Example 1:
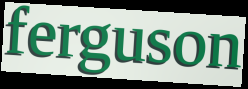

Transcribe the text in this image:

ferguson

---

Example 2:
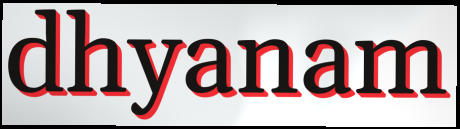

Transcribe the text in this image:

dhyanam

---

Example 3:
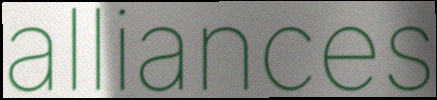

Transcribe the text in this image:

alliances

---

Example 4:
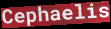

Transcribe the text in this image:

Cephaelis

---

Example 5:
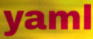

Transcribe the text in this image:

yaml